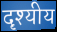
दृश्यीय